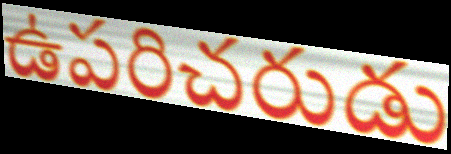
ఉపరిచరుడు